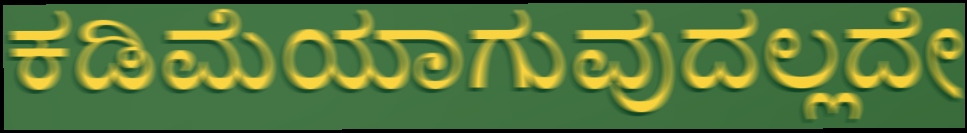
ಕಡಿಮೆಯಾಗುವುದಲ್ಲದೇ